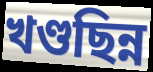
খণ্ডছিন্ন